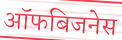
ऑफबिजनेस